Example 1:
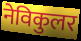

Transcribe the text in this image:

नेविकुलर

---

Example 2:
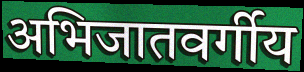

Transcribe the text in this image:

अभिजातवर्गीय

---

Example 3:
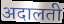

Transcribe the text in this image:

अदालती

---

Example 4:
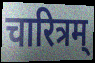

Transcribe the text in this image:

चारित्रम्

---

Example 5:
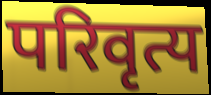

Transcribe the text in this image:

परिवृत्य